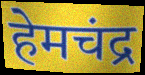
हेमचंद्र